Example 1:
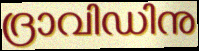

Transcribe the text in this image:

ദ്രാവിഡിനു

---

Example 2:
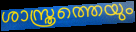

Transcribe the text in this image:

ശാസ്ത്രത്തെയും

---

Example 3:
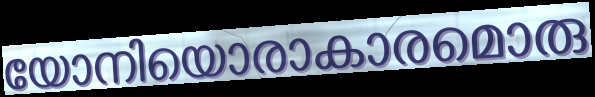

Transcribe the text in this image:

യോനിയൊരാകാരമൊരു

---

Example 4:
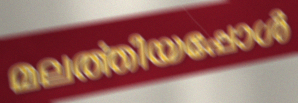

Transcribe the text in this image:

മലൎത്തിയപ്പോൾ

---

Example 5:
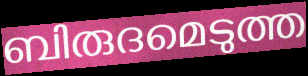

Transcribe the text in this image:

ബിരുദമെടുത്ത